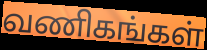
வணிகங்கள்